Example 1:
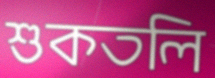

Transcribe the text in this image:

শুকতলি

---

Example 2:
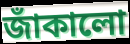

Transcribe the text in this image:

জাঁকালো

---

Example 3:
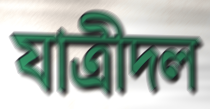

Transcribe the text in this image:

যাত্রীদল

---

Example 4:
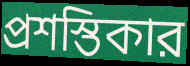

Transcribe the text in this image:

প্রশস্তিকার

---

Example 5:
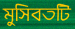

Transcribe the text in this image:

মুসিবতটি